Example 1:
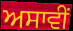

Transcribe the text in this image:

ਅਸਾਵੀਂ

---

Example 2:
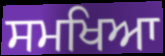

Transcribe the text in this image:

ਸਮਖਿਆ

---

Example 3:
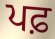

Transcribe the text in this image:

ਪਫ਼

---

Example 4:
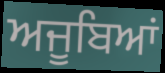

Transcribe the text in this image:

ਅਜੂਬਿਆਂ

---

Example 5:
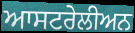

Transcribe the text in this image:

ਆਸਟਰੇਲੀਅਨ